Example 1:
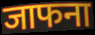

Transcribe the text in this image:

जाफना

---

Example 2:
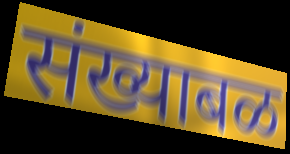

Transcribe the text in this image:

संख्याबळ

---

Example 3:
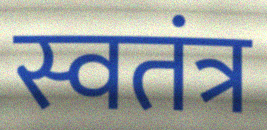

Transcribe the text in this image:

स्‍वतंत्र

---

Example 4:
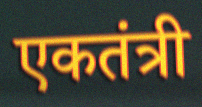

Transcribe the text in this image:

एकतंत्री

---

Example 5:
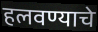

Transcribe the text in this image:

हलवण्याचे